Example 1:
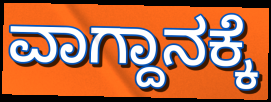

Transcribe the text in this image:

ವಾಗ್ದಾನಕ್ಕೆ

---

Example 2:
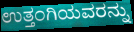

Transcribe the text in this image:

ಉತ್ತಂಗಿಯವರನ್ನು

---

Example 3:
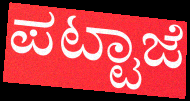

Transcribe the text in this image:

ಪಟ್ಟಾಜೆ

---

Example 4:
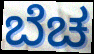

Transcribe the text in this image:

ಬೆಚ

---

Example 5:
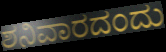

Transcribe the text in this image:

ಶನಿವಾರದಂದು